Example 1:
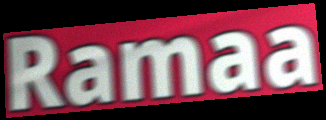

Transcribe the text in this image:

Ramaa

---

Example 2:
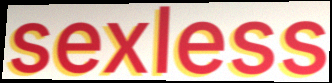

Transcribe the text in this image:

sexless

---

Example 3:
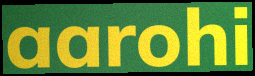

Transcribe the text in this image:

aarohi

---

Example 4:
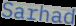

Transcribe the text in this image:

Sarhad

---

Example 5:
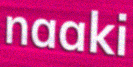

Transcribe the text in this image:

naaki